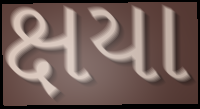
ક્ષયા